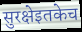
सुरक्षेइतकेच